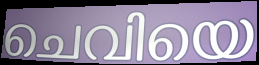
ചെവിയെ